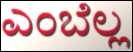
ಎಂಬೆಲ್ಲ